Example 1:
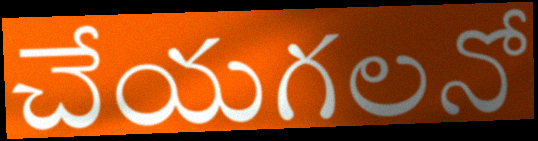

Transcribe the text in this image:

చేయగలనో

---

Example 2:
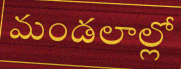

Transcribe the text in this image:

మండలాల్లో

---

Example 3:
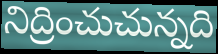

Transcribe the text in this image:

నిద్రించుచున్నది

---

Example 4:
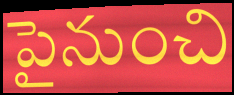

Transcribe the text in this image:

పైనుంచి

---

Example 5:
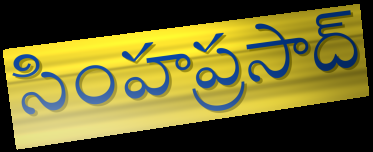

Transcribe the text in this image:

సింహప్రసాద్